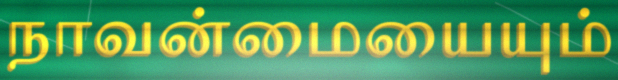
நாவன்மையையும்